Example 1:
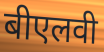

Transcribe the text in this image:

बीएलवी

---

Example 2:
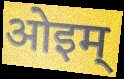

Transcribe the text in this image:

ओइम्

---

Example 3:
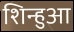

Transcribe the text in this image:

शिन्‍हुआ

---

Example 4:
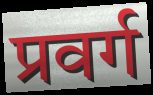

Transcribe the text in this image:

प्रवर्ग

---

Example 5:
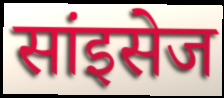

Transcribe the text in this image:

सांइसेज